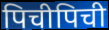
पिचीपिची